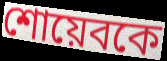
শোয়েবকে